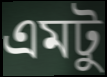
এমটু